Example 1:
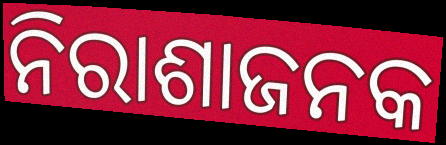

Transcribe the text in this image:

ନିରାଶାଜନକ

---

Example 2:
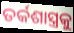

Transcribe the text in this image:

ତର୍କଶାସ୍ତ୍ରକୁ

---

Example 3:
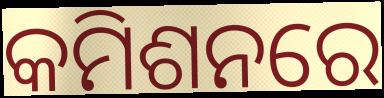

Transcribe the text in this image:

କମିଶନରେ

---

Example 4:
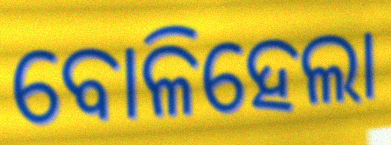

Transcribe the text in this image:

ବୋଳିହେଲା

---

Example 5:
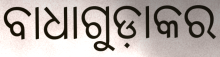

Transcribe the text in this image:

ବାଧାଗୁଡ଼ାକର